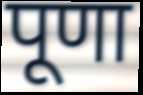
पूणा